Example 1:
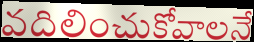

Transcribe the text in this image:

వదిలించుకోవాలనే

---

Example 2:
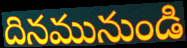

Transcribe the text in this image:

దినమునుండి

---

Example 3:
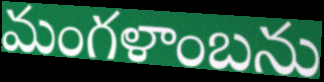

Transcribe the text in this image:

మంగళాంబను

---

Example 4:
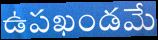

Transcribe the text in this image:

ఉపఖండమే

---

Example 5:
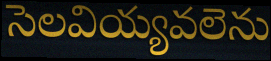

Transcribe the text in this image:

సెలవియ్యవలెను